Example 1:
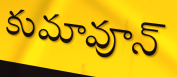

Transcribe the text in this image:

కుమావూన్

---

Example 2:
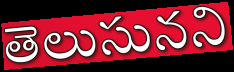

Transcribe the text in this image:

తెలుసునని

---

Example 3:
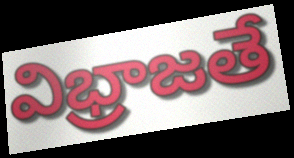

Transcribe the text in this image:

విభ్రాజతే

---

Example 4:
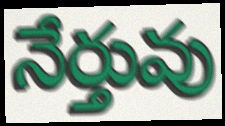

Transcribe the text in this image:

నేర్తువు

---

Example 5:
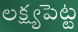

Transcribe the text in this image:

లక్ష్యపెట్ట